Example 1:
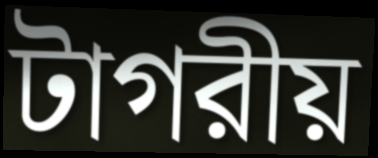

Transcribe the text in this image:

টাগরীয়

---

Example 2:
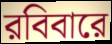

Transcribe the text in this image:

রবিবারে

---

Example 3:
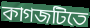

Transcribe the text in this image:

কাগজটিতে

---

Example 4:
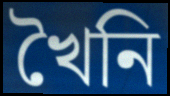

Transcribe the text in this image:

খৈনি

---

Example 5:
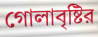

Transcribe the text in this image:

গোলাবৃষ্টির